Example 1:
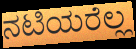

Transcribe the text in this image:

ನಟಿಯರೆಲ್ಲ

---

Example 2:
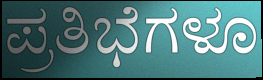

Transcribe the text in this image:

ಪ್ರತಿಭೆಗಳೂ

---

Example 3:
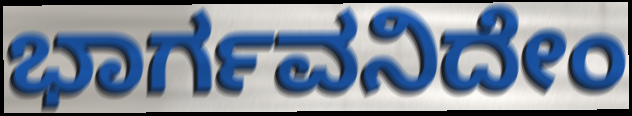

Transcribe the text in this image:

ಭಾರ್ಗವನಿದೇಂ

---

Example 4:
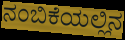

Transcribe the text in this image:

ನಂಬಿಕೆಯಲ್ಲಿನ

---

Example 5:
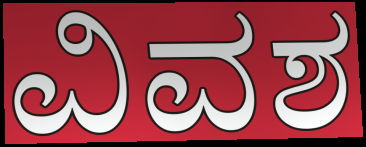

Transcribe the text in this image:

ವಿವಶ